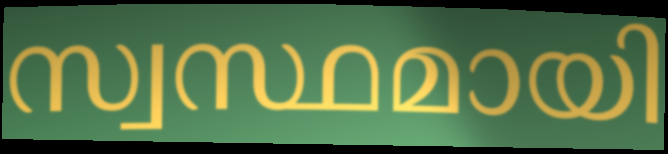
സ്വസ്ഥമായി